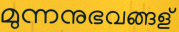
മുന്നനുഭവങ്ങള്